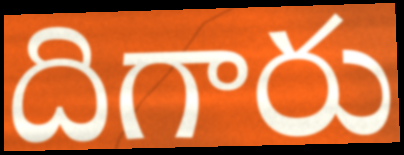
దిగారు